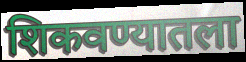
शिकवण्यातला